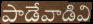
పాడేవాడివి